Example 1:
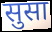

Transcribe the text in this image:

सुसा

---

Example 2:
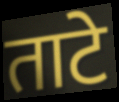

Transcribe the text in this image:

ताटे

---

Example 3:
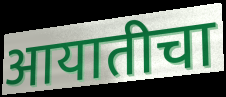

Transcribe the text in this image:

आयातीचा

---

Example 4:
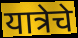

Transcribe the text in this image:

यात्रेचे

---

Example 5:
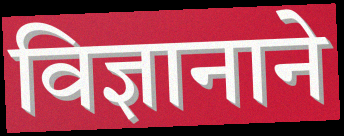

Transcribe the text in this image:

विज्ञानाने